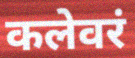
कलेवरं